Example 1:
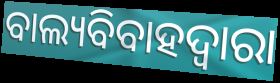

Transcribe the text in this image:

ବାଲ୍ୟବିବାହଦ୍ୱାରା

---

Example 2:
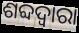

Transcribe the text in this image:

ଶବ୍ଦଦ୍ୱାରା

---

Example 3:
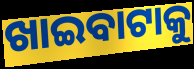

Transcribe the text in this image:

ଖାଇବାଟାକୁ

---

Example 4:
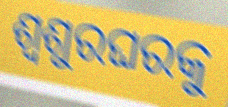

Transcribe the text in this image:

ଶ୍ୱଶୁରଘରକୁ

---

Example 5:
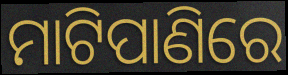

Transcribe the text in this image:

ମାଟିପାଣିରେ